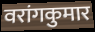
वरांगकुमार